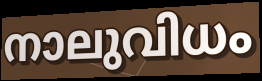
നാലുവിധം